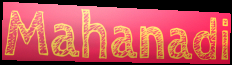
Mahanadi